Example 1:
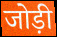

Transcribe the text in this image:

जोड़ी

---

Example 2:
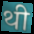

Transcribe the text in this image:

थी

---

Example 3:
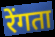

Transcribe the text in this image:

रेंगता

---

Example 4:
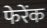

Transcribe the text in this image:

फेरेंक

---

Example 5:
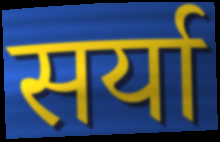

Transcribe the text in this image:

सर्या